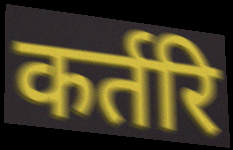
कर्तरि